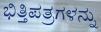
ಭಿತ್ತಿಪತ್ರಗಳನ್ನು